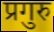
प्रगुरु